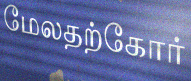
மேலதற்கோர்